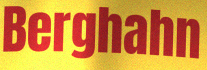
Berghahn